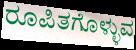
ರೂಪಿತಗೊಳ್ಳುವ